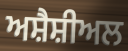
ਅਸ਼ੈਸ਼ੀਅਲ